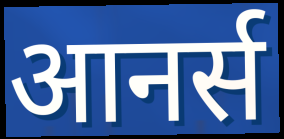
आनर्स